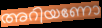
അറിയണോ